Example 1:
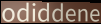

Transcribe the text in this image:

odiddene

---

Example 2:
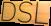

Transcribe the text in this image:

DSL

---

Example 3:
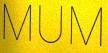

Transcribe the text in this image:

MUM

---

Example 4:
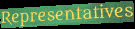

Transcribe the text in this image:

Representatives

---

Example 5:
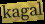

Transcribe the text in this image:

kagal